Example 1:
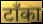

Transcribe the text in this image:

टाँका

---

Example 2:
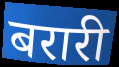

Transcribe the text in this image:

बरारी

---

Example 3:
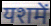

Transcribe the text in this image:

यशमें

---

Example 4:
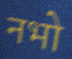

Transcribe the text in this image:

नभो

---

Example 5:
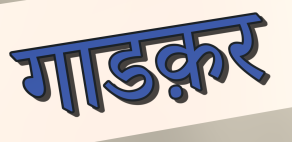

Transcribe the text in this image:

गाडक़र